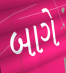
બાગે